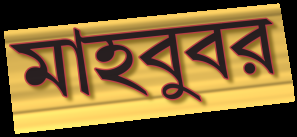
মাহবুবর